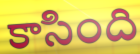
కాసింది